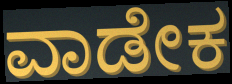
ವಾಡೇಕ